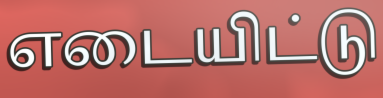
எடையிட்டு